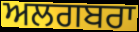
ਅਲਗਬਰਾ